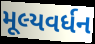
મૂલ્યવર્ધન